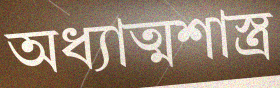
অধ্যাত্মশাস্ত্র